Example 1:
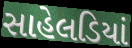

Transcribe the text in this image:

સાહેલડિયાં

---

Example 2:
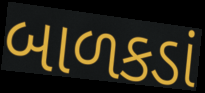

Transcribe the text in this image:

બાળકડાં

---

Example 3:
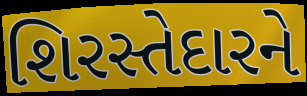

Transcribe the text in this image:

શિરસ્તેદારને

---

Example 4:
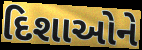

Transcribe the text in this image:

દિશાઓને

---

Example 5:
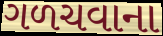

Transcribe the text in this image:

ગળચવાના